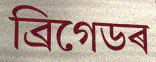
ব্ৰিগেডৰ